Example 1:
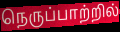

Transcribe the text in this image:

நெருப்பாற்றில்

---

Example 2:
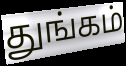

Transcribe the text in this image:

துங்கம்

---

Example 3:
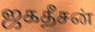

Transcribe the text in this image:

ஜகதீசன்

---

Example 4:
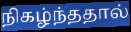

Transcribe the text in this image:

நிகழ்ந்ததால்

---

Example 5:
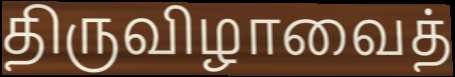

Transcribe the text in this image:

திருவிழாவைத்